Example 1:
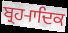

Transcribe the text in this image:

ਬ੍ਰਹ੍ਮਾਦਿਕ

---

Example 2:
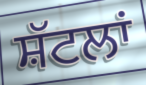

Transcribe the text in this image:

ਸ਼ੱਟਲਾਂ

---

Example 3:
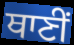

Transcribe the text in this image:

ਥਾਣੀਂ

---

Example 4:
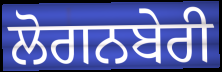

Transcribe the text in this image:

ਲੋਗਨਬੇਰੀ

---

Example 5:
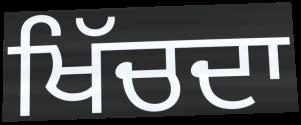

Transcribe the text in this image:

ਖਿੱਚਦਾ